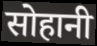
सोहानी